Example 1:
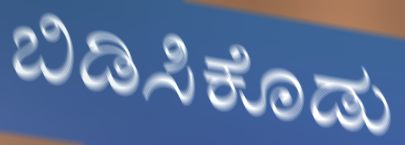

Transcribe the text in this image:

ಬಿಡಿಸಿಕೊಡು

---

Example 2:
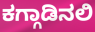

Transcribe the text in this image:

ಕಗ್ಗಾಡಿನಲಿ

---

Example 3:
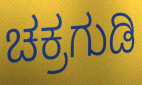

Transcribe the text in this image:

ಚಕ್ರಗುಡಿ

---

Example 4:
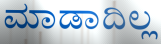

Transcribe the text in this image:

ಮಾಡಾದಿಲ್ಲ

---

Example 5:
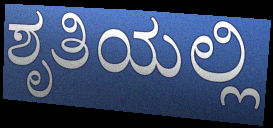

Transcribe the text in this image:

ಶೃತಿಯಲ್ಲಿ